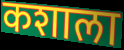
कशाला